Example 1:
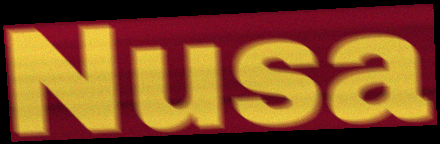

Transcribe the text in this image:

Nusa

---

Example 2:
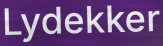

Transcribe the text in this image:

Lydekker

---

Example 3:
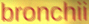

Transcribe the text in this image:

bronchii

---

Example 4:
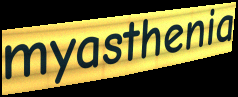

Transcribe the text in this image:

myasthenia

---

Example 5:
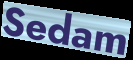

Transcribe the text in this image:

Sedam